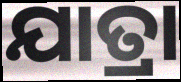
ଯାତ୍ରା